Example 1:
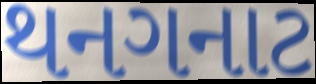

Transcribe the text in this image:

થનગનાટ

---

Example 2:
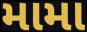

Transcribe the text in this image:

મામા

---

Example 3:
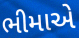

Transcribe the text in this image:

ભીમાએ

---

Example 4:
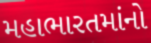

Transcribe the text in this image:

મહાભારતમાંનો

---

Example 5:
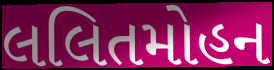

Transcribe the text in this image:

લલિતમોહન